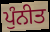
ਪੁੰਨੀਤ